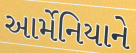
આર્મેનિયાને